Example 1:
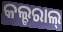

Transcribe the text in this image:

କଲ୍ଚରାଲ୍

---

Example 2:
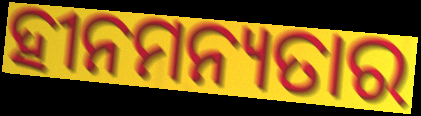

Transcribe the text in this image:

ହୀନମନ୍ୟତାର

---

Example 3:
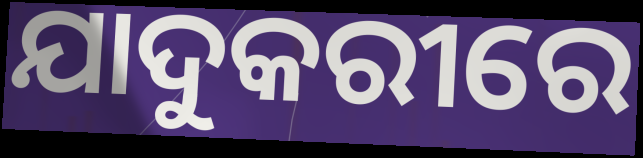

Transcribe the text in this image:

ଯାଦୁକରୀରେ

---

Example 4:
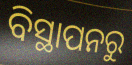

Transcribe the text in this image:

ବିସ୍ଥାପନରୁ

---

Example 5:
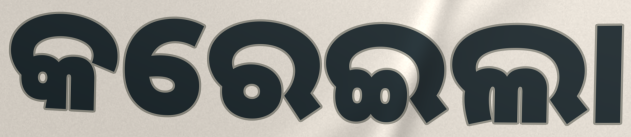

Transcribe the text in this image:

କରେଇଲା